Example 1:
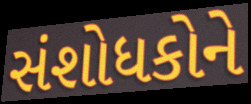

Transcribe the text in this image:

સંશોધકોને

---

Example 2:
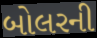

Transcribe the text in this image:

બોલરની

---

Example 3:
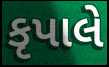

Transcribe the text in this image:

કૃપાલે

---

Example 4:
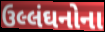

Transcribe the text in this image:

ઉલ્લંઘનોના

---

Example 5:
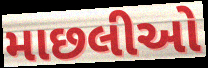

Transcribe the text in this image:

માછલીઓ